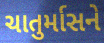
ચાતુર્માસને